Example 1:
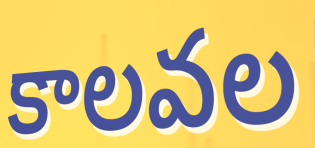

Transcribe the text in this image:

కాలవల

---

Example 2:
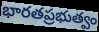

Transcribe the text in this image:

భారతప్రభుత్వం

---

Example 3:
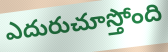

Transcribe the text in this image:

ఎదురుచూస్తోంది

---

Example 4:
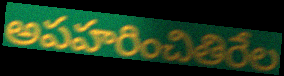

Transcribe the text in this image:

అపహరించితిరేల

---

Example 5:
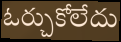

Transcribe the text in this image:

ఓర్చుకోలేదు